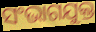
ସଂଭାଗଯୁକ୍ତ